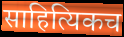
साहित्यिकच